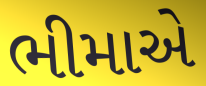
ભીમાએ